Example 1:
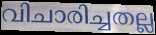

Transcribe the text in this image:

വിചാരിച്ചതല്ല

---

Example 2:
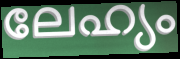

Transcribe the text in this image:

ലേഹ്യം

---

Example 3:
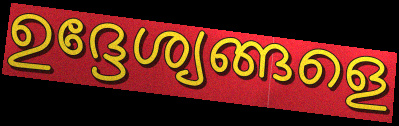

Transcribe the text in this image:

ഉദ്ദേശ്യങ്ങളെ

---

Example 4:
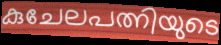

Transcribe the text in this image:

കുചേലപത്നിയുടെ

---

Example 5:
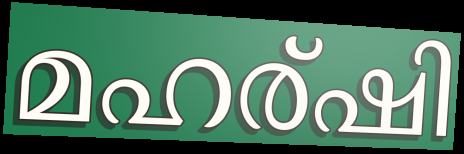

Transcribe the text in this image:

മഹര്ഷി